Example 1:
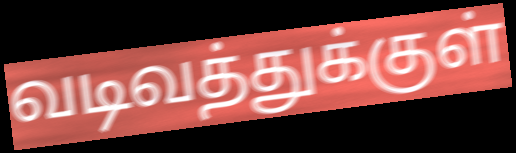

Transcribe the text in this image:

வடிவத்துக்குள்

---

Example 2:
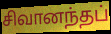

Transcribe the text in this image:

சிவானந்தப்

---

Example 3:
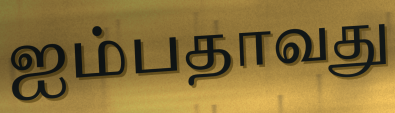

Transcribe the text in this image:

ஐம்பதாவது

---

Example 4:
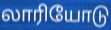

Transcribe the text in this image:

லாரியோடு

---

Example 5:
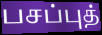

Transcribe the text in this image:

பசப்புத்